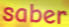
saber